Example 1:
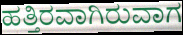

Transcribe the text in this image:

ಹತ್ತಿರವಾಗಿರುವಾಗ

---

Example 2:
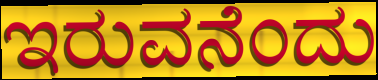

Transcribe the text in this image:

ಇರುವನೆಂದು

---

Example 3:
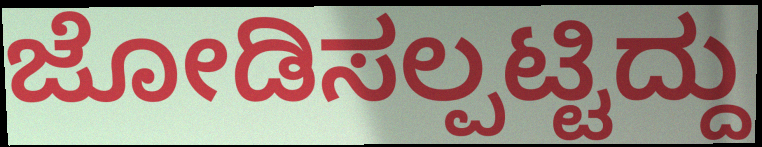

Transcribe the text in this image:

ಜೋಡಿಸಲ್ಪಟ್ಟಿದ್ದು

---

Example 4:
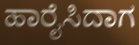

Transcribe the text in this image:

ಹಾರೈಸಿದಾಗ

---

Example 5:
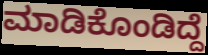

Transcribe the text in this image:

ಮಾಡಿಕೊಂಡಿದ್ದೆ